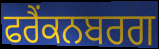
ਫਰੈਂਕਨਬਰਗ